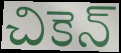
చికెన్